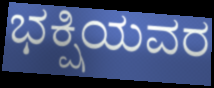
ಭಕ್ಷಿಯವರ